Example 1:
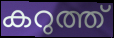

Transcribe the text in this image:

കറുത്ത്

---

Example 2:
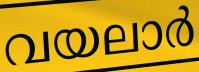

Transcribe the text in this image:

വയലാർ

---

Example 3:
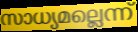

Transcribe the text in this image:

സാധ്യമല്ലെന്ന്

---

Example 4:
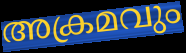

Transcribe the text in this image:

അക്രമവും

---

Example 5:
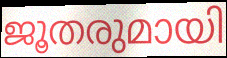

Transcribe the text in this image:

ജൂതരുമായി